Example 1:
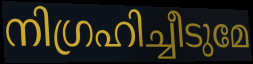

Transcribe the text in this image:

നിഗ്രഹിച്ചീടുമേ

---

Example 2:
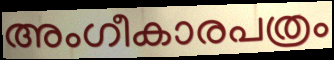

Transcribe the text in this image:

അംഗീകാരപത്രം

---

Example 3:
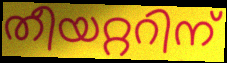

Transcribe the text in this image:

തീയറ്ററിന്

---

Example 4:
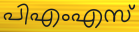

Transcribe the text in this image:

പിഎംഎസ്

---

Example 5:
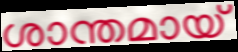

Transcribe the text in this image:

ശാന്തമായ്